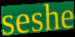
seshe